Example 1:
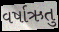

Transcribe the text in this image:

વર્ષાઋતુ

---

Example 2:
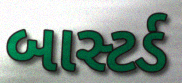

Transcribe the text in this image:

બાસ્ટર્ડ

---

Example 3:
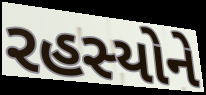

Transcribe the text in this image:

રહસ્યોને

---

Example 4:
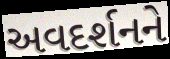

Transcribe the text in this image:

અવદર્શનને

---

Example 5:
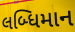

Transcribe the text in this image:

લબ્ધિમાન